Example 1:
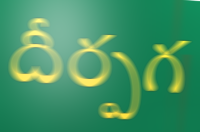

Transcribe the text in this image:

దీర్పగ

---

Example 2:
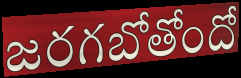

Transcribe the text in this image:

జరగబోతోందో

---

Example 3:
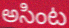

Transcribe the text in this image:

అసింట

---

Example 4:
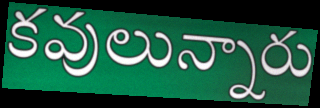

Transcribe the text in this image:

కవులున్నారు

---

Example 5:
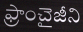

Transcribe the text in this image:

ఫ్రాంచైజీని